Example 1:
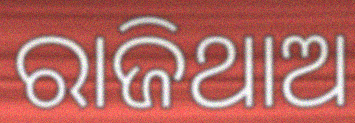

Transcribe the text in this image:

ରାଜିଥାଅ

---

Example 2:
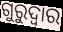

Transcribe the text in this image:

ଗୁରୁଦ୍ଵାର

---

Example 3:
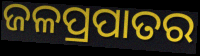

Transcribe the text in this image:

ଜଳପ୍ରପାତର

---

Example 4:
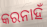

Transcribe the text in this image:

କରନାହଁ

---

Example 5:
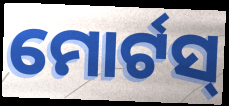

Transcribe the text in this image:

ମୋର୍ଟସ୍